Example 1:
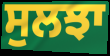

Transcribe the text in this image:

ਸੁਲਝਾ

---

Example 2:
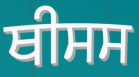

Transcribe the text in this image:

ਥੀਸਸ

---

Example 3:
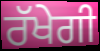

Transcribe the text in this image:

ਰੱਖੇਗੀ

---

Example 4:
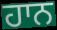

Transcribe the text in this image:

ਹਾਨ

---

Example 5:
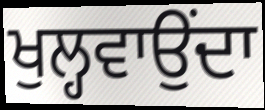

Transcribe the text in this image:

ਖੁਲ੍ਹਵਾਉਂਦਾ